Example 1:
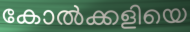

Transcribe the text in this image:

കോൽക്കളിയെ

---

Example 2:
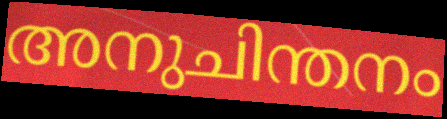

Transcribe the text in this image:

അനുചിന്തനം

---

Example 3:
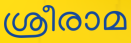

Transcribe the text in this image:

ശ്രീരാമ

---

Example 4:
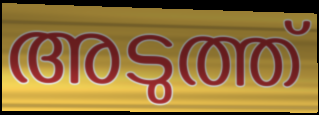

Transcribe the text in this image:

അടുത്ത്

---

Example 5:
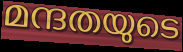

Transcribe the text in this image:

മന്ദതയുടെ